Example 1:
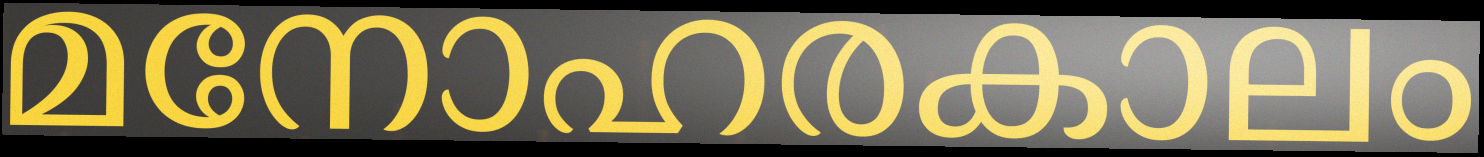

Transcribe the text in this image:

മനോഹരകാലം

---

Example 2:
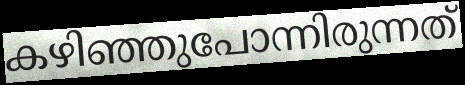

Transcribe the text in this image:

കഴിഞ്ഞുപോന്നിരുന്നത്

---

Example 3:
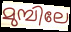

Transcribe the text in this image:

മുമ്പിലേ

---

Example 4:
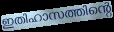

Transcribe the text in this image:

ഇതിഹാസത്തിന്റെ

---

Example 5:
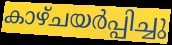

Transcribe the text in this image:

കാഴ്ചയർപ്പിച്ചു